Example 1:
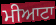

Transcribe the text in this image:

ਮੀਆਟਾ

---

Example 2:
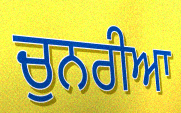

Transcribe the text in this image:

ਚੁਨਰੀਆ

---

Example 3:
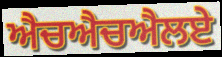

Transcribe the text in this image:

ਐਚਐਚਐਲਏ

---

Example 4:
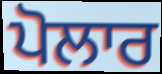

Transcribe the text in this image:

ਪੋਲਾਰ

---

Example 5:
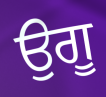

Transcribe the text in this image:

ਉਗੂ